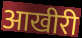
आखीरी